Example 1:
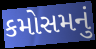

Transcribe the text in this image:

કમોસમનું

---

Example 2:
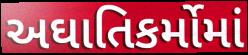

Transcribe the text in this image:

અઘાતિકર્મોમાં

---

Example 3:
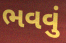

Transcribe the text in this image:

ભવવું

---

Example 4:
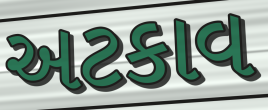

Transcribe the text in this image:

અટકાવ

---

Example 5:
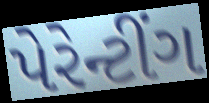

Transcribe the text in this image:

પેરેન્ટીંગ